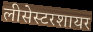
लीसेस्टरशायर